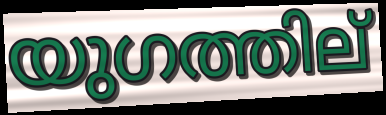
യുഗത്തില്